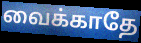
வைக்காதே